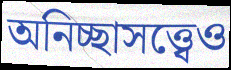
অনিচ্ছাসত্ত্বেও